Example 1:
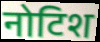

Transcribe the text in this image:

नोटिश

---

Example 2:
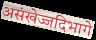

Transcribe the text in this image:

असंखेज्जदिभागे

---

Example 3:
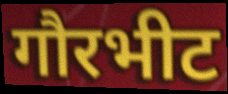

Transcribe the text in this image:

गौरभीट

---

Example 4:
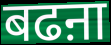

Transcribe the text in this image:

बढऩा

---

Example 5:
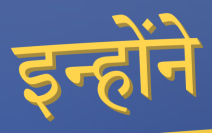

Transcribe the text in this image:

इन्‍होंने